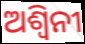
ଅଶ୍ୱିନୀ